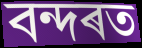
বন্দৰত